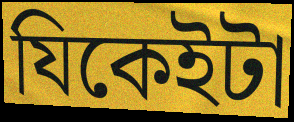
যিকেইটা